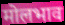
मोलभाव